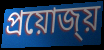
প্ৰয়োজ্য়